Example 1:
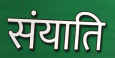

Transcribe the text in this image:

संयाति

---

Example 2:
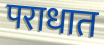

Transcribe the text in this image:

पराधात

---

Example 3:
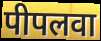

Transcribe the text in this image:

पीपलवा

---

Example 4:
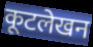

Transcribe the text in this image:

कूटलेखन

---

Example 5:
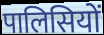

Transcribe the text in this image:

पालिसियों